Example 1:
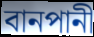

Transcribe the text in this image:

বানপানী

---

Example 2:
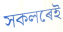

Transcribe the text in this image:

সকলৰেই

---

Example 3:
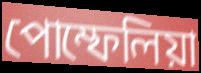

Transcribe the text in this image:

পোম্ফেলিয়া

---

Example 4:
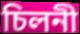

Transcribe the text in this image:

চিলনী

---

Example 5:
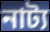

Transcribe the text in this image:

নাট্য